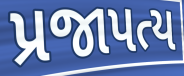
પ્રજાપત્ય